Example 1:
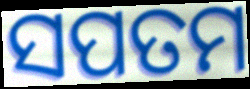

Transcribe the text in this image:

ସପତମ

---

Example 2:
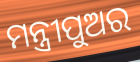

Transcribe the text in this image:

ମନ୍ତ୍ରୀପୁଅର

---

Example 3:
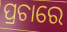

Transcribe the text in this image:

ପ୍ରଚାରେ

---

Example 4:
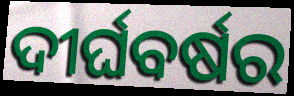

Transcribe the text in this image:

ଦୀର୍ଘବର୍ଷର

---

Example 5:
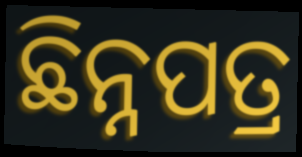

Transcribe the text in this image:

ଛିନ୍ନପତ୍ର